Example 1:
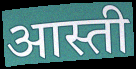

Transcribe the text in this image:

आस्ती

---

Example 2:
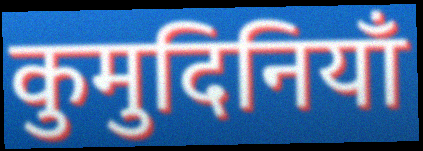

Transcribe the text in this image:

कुमुदिनियाँ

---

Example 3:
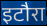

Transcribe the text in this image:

इटौरा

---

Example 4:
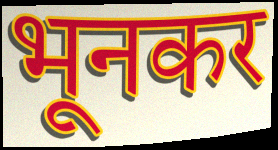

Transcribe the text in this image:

भूनकर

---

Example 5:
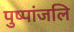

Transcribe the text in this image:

पुष्पांजलि